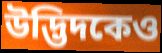
উদ্ভিদকেও